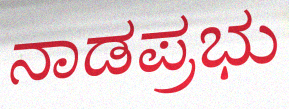
ನಾಡಪ್ರಭು